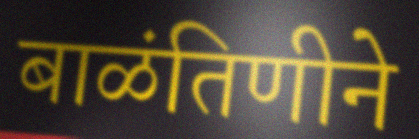
बाळंतिणीने